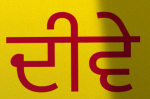
ਦੀਵੇ